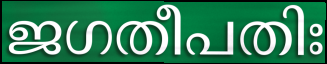
ജഗതീപതിഃ